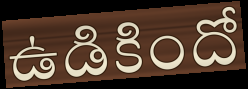
ఉడికిందో